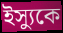
ইস্যুকে